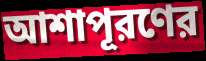
আশাপূরণের